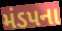
મંડપના